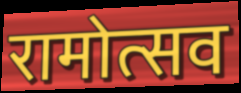
रामोत्सव